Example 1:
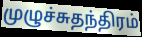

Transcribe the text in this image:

முழுச்சுதந்திரம்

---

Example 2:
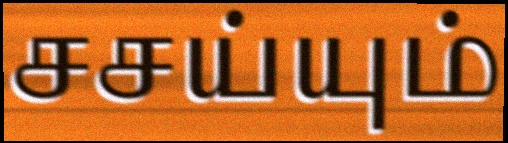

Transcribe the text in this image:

சசய்யும்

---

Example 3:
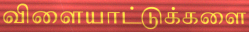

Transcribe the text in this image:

விளையாட்டுக்களை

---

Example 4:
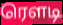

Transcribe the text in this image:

ரௌடி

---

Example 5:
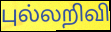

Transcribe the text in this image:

புல்லறிவி